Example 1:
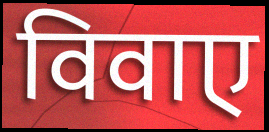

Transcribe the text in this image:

विवाए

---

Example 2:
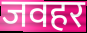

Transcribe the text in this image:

जवहर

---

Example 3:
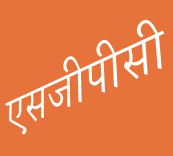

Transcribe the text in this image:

एसजीपीसी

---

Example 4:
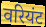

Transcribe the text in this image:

वरियंट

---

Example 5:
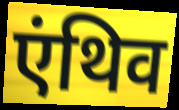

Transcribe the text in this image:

एंथिव